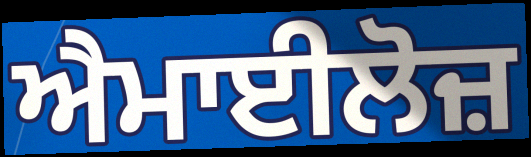
ਐਮਾਈਲੋਜ਼